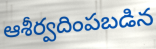
ఆశీర్వదింపబడిన